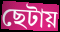
ছেটায়